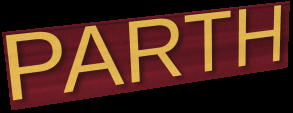
PARTH